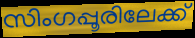
സിംഗപ്പൂരിലേക്ക്